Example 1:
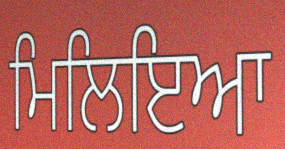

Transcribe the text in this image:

ਮਿਲਿਇਆ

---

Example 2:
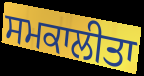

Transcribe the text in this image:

ਸਮਕਾਲੀਤਾ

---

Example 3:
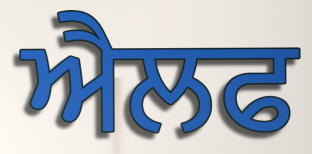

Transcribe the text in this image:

ਐਲਫ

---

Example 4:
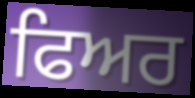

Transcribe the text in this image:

ਫਿਅਰ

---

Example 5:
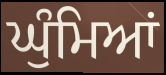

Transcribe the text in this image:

ਘੁੰਮਿਆਂ